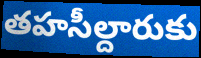
తహసీల్దారుకు